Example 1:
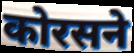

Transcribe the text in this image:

कोरसने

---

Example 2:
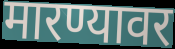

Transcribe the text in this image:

मारण्यावर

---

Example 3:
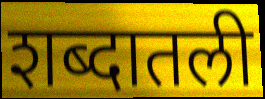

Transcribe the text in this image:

शब्दातली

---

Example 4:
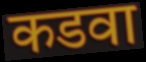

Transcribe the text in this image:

कडवा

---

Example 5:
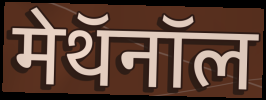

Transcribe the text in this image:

मेथॅनॉल